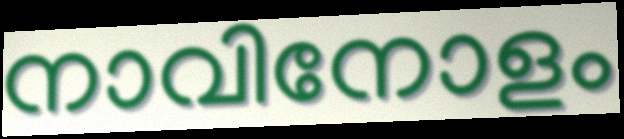
നാവിനോളം